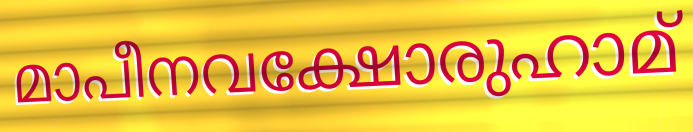
മാപീനവക്ഷോരുഹാമ്